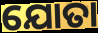
ଯୋତା